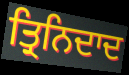
ਤ੍ਰਿਨਿਦਾਦ